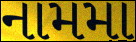
નામમા